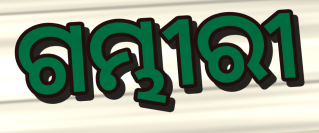
ଗମ୍ଭୀରୀ